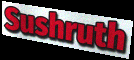
Sushruth